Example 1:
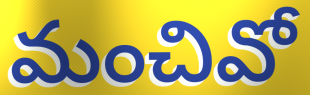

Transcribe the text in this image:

మంచివో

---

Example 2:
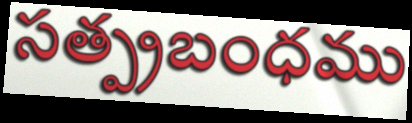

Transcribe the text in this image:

సత్ప్రబంధము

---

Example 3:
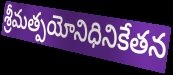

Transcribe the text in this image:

శ్రీమత్పయోనిధినికేతన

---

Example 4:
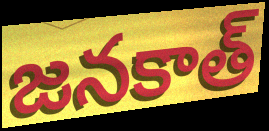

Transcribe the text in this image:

జనకాత్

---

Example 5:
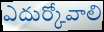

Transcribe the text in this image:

ఎదుర్కోవాలి